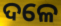
ଦଳେ